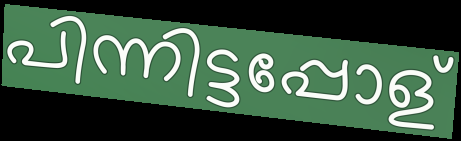
പിന്നിട്ടപ്പോള്